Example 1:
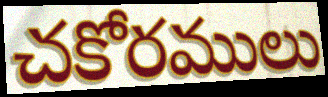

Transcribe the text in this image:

చకోరములు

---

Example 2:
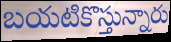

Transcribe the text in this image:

బయటికొస్తున్నారు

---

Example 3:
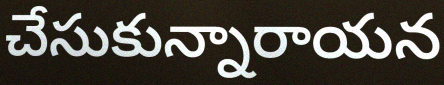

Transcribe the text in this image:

చేసుకున్నారాయన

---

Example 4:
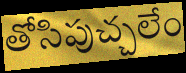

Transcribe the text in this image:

తోసిపుచ్చలేం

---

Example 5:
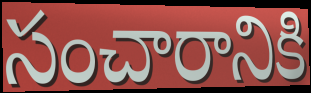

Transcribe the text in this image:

సంచారానికి